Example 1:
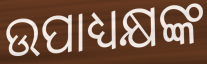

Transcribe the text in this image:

ଉପାଧ୍ୟକ୍ଷଙ୍କ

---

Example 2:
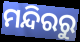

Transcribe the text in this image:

ମନ୍ଦିରରୁ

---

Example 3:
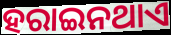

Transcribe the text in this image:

ହରାଇନଥାଏ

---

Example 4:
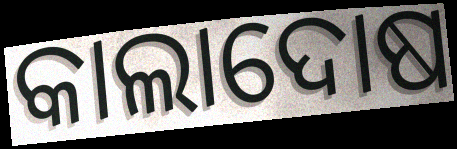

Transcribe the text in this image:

କାଲାଦୋଷ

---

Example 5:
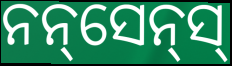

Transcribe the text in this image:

ନନ୍‌ସେନ୍‌ସ୍